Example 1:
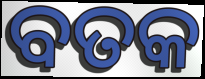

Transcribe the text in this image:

ବତକ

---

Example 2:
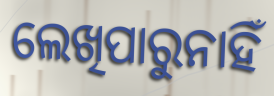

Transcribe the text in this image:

ଲେଖିପାରୁନାହିଁ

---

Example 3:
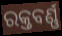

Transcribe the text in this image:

ରକ୍ତବର୍ଣ୍ଣ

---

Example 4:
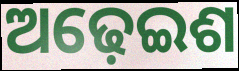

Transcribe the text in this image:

ଅଢ଼େଇଶ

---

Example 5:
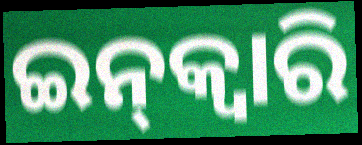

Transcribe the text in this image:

ଇନ୍‌କ୍ଵାରି